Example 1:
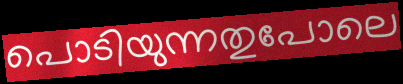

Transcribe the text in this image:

പൊടിയുന്നതുപോലെ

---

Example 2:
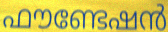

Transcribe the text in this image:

ഫൗണ്ടേഷൻ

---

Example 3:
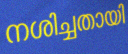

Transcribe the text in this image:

നശിച്ചതായി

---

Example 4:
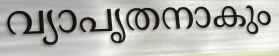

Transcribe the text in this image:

വ്യാപൃതനാകും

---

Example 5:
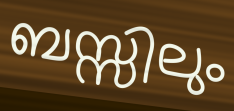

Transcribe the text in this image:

ബസ്സിലും